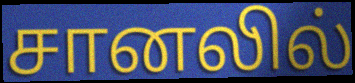
சானலில்